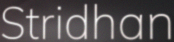
Stridhan